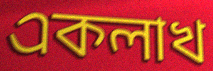
একলাখ